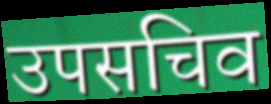
उपसचिव